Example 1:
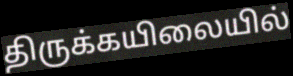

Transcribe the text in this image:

திருக்கயிலையில்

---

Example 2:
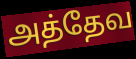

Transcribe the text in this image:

அத்தேவ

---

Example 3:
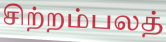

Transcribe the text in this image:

சிற்றம்பலத்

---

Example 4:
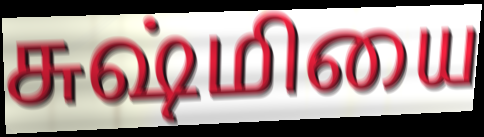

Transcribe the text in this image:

சுஷ்மியை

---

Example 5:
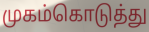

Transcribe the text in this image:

முகம்கொடுத்து